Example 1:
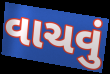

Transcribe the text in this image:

વાચવું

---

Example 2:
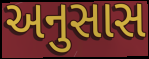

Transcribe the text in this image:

અનુસાસ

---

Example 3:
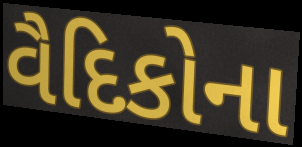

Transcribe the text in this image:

વૈદિકોના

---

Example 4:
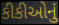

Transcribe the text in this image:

કીકીઓનું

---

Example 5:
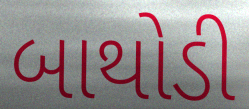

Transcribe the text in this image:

બાથોડી